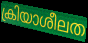
ക്രിയാശീലത